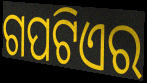
ଗପଟିଏର